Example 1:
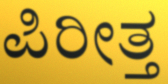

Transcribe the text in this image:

ಪಿರೀತ್ತ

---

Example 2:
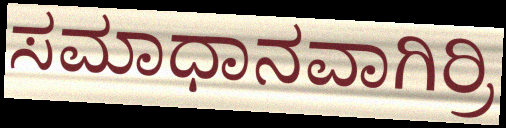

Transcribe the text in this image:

ಸಮಾಧಾನವಾಗಿರ್ರಿ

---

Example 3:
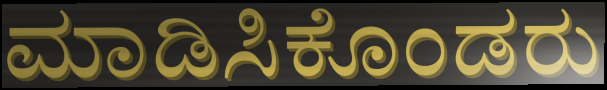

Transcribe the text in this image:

ಮಾಡಿಸಿಕೊಂಡರು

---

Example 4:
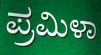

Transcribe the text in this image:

ಪ್ರಮಿಳಾ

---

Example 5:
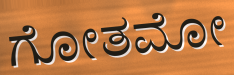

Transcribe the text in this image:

ಗೋತಮೋ